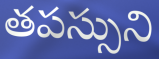
తపస్సుని